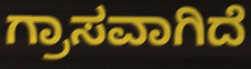
ಗ್ರಾಸವಾಗಿದೆ